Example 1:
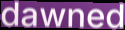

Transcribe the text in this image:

dawned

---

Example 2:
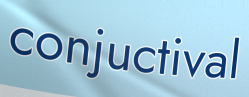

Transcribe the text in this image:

conjuctival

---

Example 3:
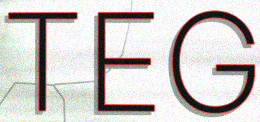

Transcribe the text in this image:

TEG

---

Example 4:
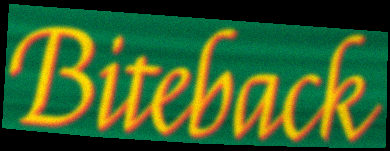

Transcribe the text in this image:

Biteback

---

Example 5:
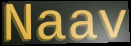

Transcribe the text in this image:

Naav